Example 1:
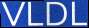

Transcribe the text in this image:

VLDL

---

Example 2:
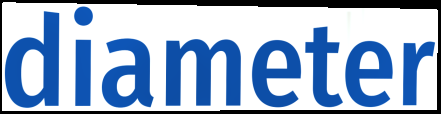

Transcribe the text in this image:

diameter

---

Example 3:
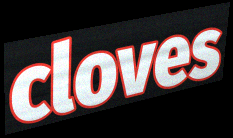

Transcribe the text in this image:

cloves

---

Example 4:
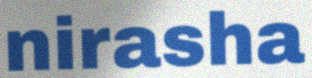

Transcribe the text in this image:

nirasha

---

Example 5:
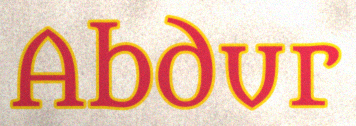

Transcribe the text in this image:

Abdur